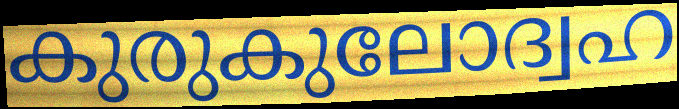
കുരുകുലോദ്വഹ